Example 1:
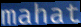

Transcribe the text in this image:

mahat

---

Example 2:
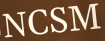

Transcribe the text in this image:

NCSM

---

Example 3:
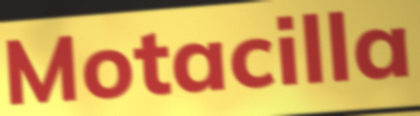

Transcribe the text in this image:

Motacilla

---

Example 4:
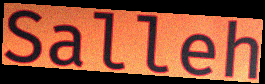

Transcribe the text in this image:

Salleh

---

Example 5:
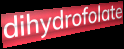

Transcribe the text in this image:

dihydrofolate